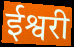
ईश्वरी